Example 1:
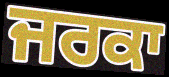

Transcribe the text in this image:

ਜਰਕਾ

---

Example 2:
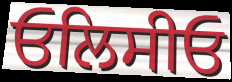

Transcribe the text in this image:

ਓਲਿਸੀਓ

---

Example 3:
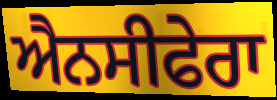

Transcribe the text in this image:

ਐਨਸੀਫੇਰਾ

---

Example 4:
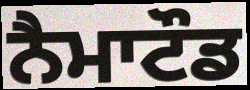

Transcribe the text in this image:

ਨੈਮਾਟੌਡ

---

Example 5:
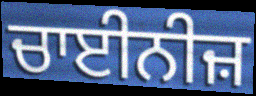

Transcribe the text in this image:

ਚਾਈਨੀਜ਼